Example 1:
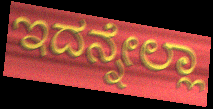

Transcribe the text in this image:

ಇದನ್ನೇಲ್ಲಾ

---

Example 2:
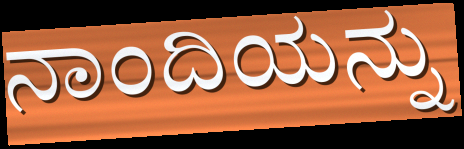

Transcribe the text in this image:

ನಾಂದಿಯನ್ನು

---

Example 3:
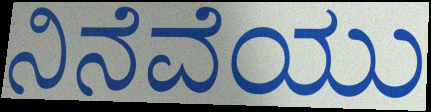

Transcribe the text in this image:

ನಿನೆವೆಯು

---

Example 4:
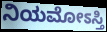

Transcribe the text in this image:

ನಿಯಮೋಽಸ್ತಿ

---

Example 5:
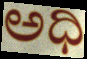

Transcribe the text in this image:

ಅಧಿ